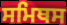
ਸਮਿਥਸ